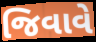
જિવાવે